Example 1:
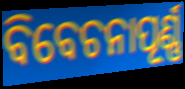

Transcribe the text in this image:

ବିବେଚନାପୂର୍ଣ୍ଣ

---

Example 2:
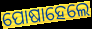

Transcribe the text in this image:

ପୋଷାହେଲେ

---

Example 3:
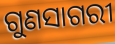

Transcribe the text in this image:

ଗୁଣସାଗରୀ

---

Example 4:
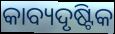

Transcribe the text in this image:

କାବ୍ୟଦୃଷ୍ଟିକ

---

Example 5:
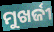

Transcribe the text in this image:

ମୁଖର୍ଜୀ